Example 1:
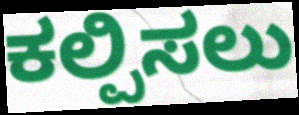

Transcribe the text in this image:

ಕಲ್ಪಿಸಲು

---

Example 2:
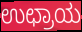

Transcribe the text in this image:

ಉಛ್ರಾಯ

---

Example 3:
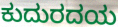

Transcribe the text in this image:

ಕುದುರದಯ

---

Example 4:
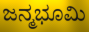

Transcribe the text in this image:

ಜನ್ಮಭೂಮಿ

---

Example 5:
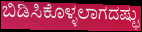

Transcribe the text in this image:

ಬಿಡಿಸಿಕೊಳ್ಳಲಾಗದಷ್ಟು